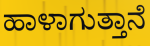
ಹಾಳಾಗುತ್ತಾನೆ